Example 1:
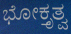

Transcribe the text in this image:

ಭೋಕ್ತೃತ್ವ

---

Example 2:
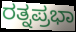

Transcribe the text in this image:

ರತ್ನಪ್ರಭಾ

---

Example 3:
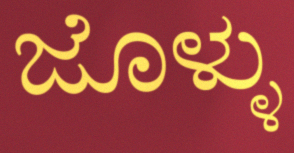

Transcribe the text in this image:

ಜೊಳ್ಳು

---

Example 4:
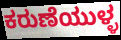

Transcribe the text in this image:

ಕರುಣೆಯುಳ್ಳ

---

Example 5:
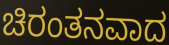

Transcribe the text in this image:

ಚಿರಂತನವಾದ